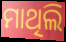
ମାଥିଲି